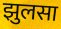
झुलसा